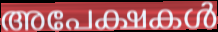
അപേക്ഷകൾ